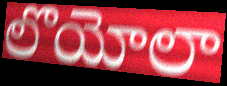
లొయోలా